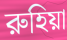
রুহিয়া